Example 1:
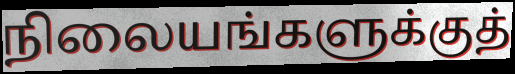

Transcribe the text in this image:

நிலையங்களுக்குத்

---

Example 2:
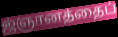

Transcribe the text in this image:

ஜ்ஞானத்தைப்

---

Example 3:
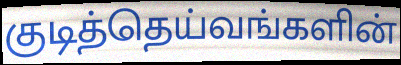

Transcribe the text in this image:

குடித்தெய்வங்களின்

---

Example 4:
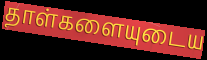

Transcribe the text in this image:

தாள்களையுடைய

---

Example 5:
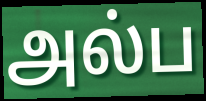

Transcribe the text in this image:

அல்ப